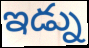
ఇడ్ను